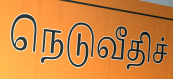
நெடுவீதிச்